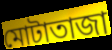
মোটাতাজা